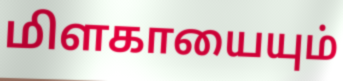
மிளகாயையும்